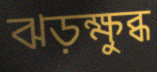
ঝড়ক্ষুব্ধ